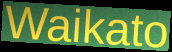
Waikato